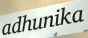
adhunika